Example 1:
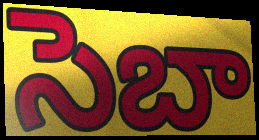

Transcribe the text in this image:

సెబా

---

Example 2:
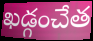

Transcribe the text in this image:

ఖడ్గంచేత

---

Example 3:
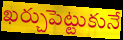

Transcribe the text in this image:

ఖర్చుపెట్టుకునే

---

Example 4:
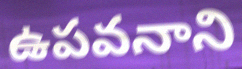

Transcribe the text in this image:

ఉపవనాని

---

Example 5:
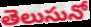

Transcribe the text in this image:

తెలుసునో